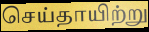
செய்தாயிற்று